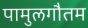
पामुलगौतम